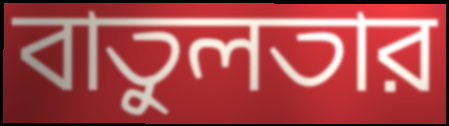
বাতুলতার